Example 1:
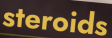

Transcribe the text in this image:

steroids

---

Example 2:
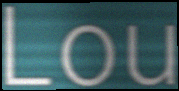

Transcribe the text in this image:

Lou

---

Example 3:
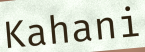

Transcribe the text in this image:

Kahani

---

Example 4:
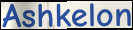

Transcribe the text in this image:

Ashkelon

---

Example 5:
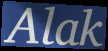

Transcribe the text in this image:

Alak